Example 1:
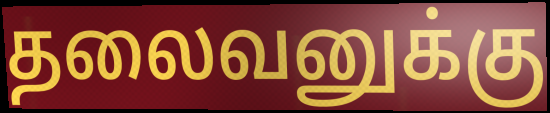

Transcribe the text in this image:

தலைவனுக்கு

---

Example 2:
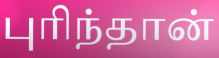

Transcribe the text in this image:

புரிந்தான்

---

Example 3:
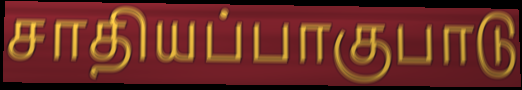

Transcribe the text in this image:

சாதியப்பாகுபாடு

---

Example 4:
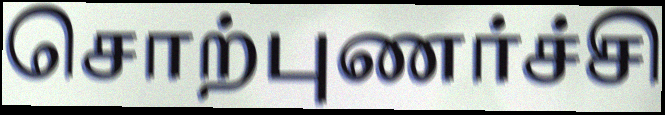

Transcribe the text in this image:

சொற்புணர்ச்சி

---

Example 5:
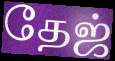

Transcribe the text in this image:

தேஜ்